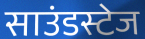
साउंडस्टेज